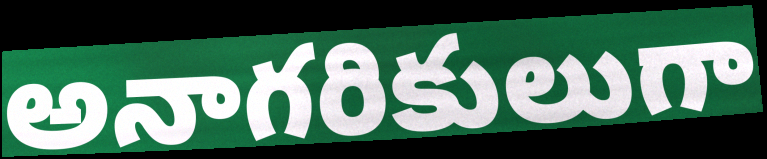
అనాగరికులుగా